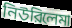
নিউরিলেমা